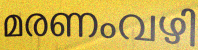
മരണംവഴി